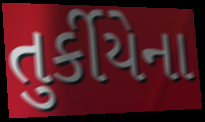
તુર્કીયેના